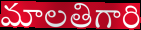
మాలతిగారి